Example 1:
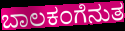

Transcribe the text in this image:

ಬಾಲಕಂಗೆನುತ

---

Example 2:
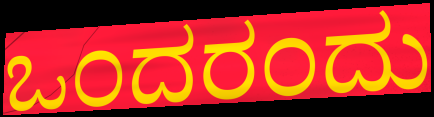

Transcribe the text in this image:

ಒಂದರಂದು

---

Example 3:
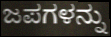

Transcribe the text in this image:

ಜಪಗಳನ್ನು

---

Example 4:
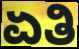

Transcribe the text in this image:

ಏತಿ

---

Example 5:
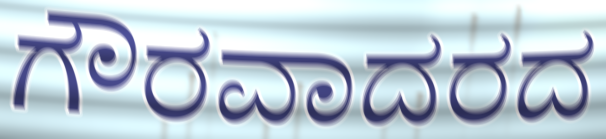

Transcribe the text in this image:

ಗೌರವಾದರದ